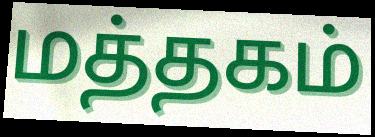
மத்தகம்